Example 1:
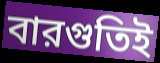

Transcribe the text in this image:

বারগুতিই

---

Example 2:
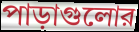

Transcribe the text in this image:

পাড়াগুলোর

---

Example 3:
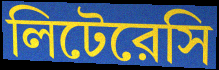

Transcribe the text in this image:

লিটেরেসি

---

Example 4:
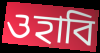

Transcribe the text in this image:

ওহাবি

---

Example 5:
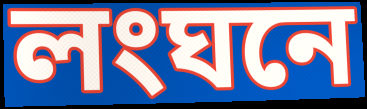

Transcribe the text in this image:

লংঘনে